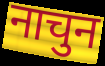
नाचुन